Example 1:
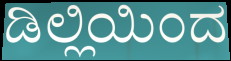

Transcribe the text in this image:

ಡಿಲ್ಲಿಯಿಂದ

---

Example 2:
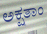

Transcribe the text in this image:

ಅಕ್ಷತಾಂ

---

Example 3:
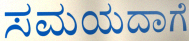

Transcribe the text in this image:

ಸಮಯದಾಗೆ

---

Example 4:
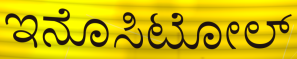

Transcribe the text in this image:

ಇನೊಸಿಟೋಲ್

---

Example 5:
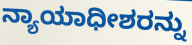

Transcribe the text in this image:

ನ್ಯಾಯಾಧೀಶರನ್ನು